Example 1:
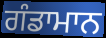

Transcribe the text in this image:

ਗੰਡਾਮਾਨ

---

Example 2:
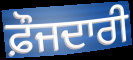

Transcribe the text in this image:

ਫ਼ੌਜਦਾਰੀ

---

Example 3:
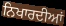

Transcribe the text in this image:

ਨਿਖਾਰਦੀਆਂ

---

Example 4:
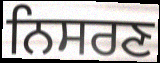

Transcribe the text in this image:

ਨਿਸਰਣ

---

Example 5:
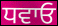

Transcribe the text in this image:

ਧਵਾਓ